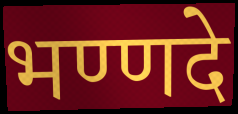
भण्णदे